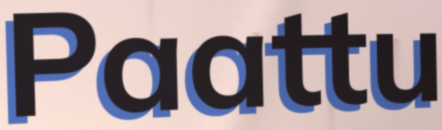
Paattu